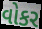
વોકર